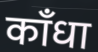
काँधा